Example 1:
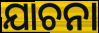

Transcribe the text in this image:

ଯାଚନା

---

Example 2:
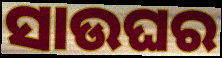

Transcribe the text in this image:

ସାଉଘର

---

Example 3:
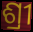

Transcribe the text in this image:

ଶ୍ରୀ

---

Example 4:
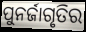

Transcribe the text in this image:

ପୁନର୍ଜାଗୃତିର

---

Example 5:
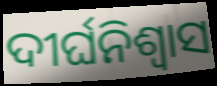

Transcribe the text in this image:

ଦୀର୍ଘନିଶ୍ୱାସ